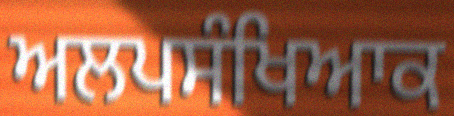
ਅਲਪਸੰਖਿਆਕ